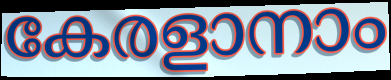
കേരളാനാം